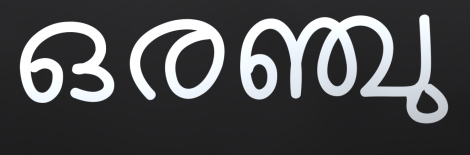
ഒരഞ്ചു